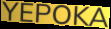
YEPOKA